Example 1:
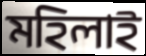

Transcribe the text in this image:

মহিলাই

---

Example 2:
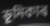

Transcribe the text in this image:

ভূমিকাৰ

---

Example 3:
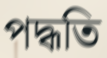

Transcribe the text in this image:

পদ্ধতি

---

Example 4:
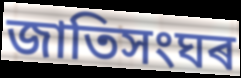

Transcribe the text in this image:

জাতিসংঘৰ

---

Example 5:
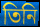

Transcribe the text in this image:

তিনি